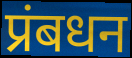
प्रंबधन